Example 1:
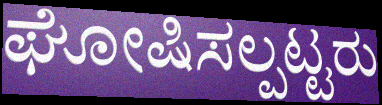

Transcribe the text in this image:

ಘೋಷಿಸಲ್ಪಟ್ಟರು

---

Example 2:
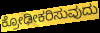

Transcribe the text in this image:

ಕ್ರೋಢೀಕರಿಸುವುದು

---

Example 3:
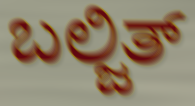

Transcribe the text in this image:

ಬಲ್ಜಿತ್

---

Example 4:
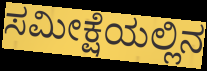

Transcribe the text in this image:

ಸಮೀಕ್ಷೆಯಲ್ಲಿನ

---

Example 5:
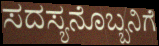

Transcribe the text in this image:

ಸದಸ್ಯನೊಬ್ಬನಿಗೆ